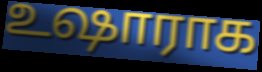
உஷாராக